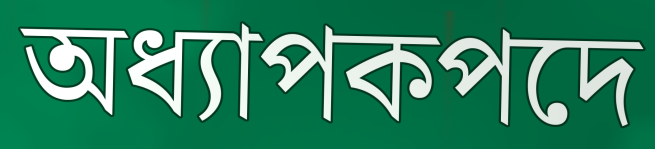
অধ্যাপকপদে